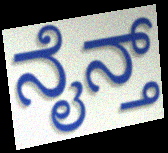
ನೈನ್ತ್